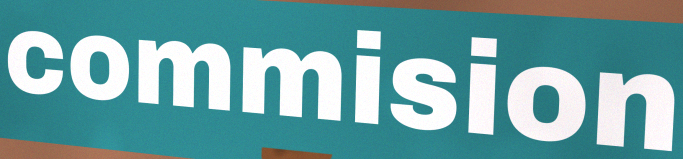
commision